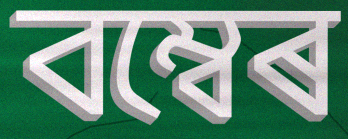
বম্বেৰ